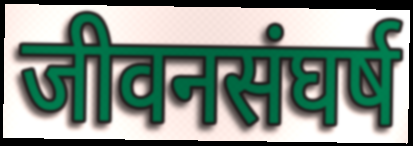
जीवनसंघर्ष